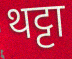
थट्टा